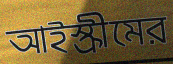
আইস্ক্রীমের